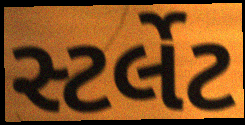
સ્ટર્લેટ